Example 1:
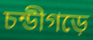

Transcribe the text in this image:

চন্ডীগড়ে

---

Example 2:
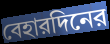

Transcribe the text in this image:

বেহারদিনের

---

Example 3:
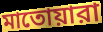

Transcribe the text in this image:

মাতোয়ারা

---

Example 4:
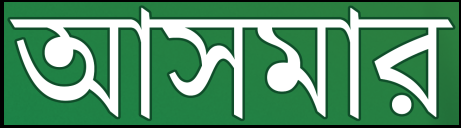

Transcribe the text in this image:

আসমার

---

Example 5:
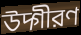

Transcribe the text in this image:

উদ্গীরণ